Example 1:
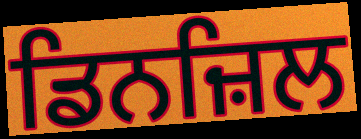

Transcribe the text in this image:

ਡਿਨਜ਼ਿਲ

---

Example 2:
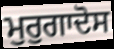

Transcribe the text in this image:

ਮੁਰੁਗਾਦੋਸ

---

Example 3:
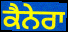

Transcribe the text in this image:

ਕੈਨੇਰਾ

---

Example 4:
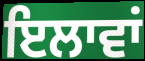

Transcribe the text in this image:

ਇਲਾਵਾਂ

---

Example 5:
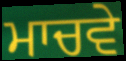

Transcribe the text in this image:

ਮਾਚਵੇ